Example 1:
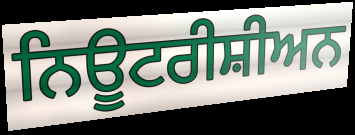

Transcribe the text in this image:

ਨਿਊਟਰੀਸ਼ੀਅਨ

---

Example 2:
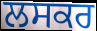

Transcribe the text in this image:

ਲਸਕਰ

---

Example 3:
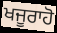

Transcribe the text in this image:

ਖਜੂਰਾਹੋ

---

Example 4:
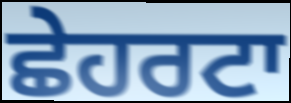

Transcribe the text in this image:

ਛੇਹਰਟਾ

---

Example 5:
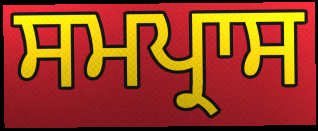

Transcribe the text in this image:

ਸਮਪ੍ਰਾਸ